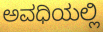
ಅವಧಿಯಲ್ಲಿ